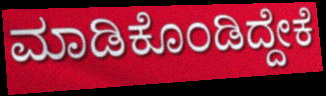
ಮಾಡಿಕೊಂಡಿದ್ದೇಕೆ